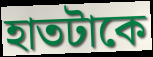
হাতটাকে